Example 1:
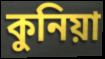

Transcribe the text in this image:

কুনিয়া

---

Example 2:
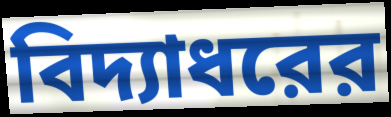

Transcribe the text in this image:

বিদ্যাধরের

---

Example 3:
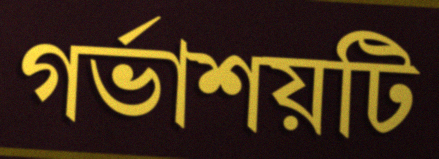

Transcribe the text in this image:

গর্ভাশয়টি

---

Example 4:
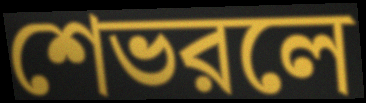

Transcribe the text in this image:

শেভরলে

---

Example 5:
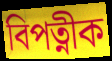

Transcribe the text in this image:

বিপত্নীক